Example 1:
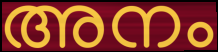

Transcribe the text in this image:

അനം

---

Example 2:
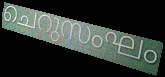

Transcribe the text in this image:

ചെറുസംഘം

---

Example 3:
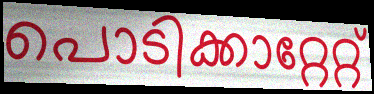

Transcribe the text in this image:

പൊടിക്കാറ്റേറ്റ്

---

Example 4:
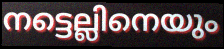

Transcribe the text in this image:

നട്ടെല്ലിനെയും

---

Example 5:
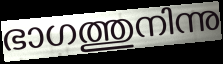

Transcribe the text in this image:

ഭാഗത്തുനിന്നു